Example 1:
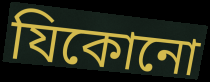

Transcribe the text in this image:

যিকোনো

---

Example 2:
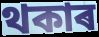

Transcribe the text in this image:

থকাৰ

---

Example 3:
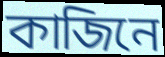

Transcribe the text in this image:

কাজিনে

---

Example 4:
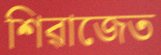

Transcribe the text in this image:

শিৱাজেত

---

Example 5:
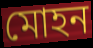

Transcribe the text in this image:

মোহন